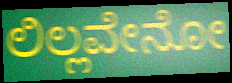
ಲಿಲ್ಲವೇನೋ